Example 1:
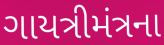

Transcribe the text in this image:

ગાયત્રીમંત્રના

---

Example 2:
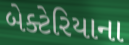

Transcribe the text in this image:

બેક્ટેરિયાના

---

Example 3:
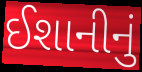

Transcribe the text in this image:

ઈશાનીનું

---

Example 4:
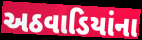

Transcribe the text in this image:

અઠવાડિયાંના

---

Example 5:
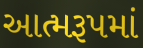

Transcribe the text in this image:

આત્મરૂપમાં